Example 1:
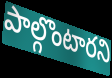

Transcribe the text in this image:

పాల్గొంటారని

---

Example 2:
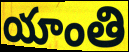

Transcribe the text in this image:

యాంతి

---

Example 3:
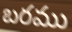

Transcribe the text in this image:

బరము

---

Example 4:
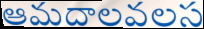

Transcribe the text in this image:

ఆమదాలవలస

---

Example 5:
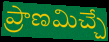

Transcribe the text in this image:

ప్రాణమిచ్చే